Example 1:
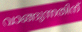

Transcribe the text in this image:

വാങ്ങുന്നതിന്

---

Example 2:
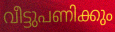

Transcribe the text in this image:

വീട്ടുപണിക്കും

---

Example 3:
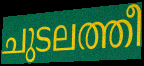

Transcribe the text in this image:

ചുടലത്തീ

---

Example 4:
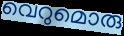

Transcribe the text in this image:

വെറുമൊരു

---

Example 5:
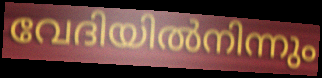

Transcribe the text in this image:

വേദിയിൽനിന്നും